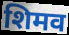
शिमव